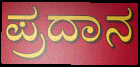
ಪ್ರದಾನ